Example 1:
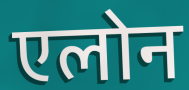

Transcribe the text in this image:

एलोन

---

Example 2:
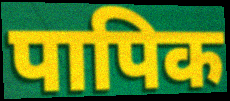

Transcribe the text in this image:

पापिक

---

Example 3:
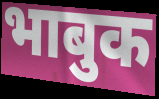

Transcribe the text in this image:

भाबुक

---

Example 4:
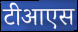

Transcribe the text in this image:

टीआएस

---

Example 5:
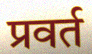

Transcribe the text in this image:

प्रवर्त